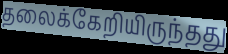
தலைக்கேறியிருந்தது